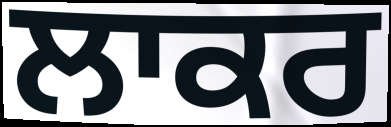
ਲਾਕਰ